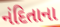
નંદિતાના